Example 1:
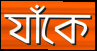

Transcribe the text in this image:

যাঁকে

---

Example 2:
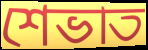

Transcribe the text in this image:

শেভাত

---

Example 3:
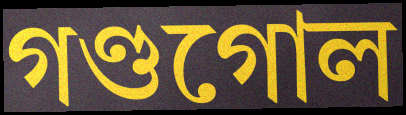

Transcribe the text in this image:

গণ্ডগোল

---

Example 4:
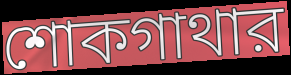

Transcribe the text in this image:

শোকগাথার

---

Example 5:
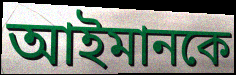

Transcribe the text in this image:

আইমানকে